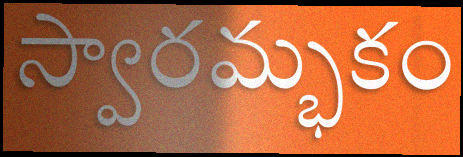
స్వారమ్భకం